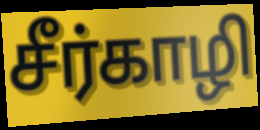
சீர்காழி